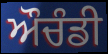
ਔਚੰਡੀ